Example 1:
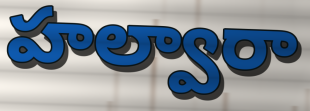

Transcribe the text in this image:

హల్వారా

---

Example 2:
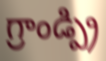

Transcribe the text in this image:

గ్రాండ్ప్రి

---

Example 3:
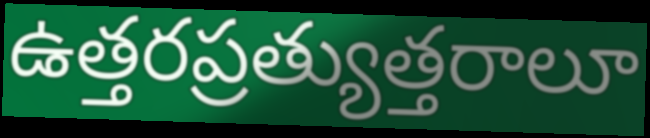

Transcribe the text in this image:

ఉత్తరప్రత్యుత్తరాలూ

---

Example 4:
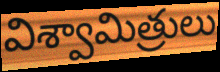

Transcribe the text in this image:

విశ్వామిత్రులు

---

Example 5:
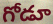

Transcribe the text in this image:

గోడూ